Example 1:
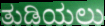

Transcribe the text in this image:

ತುಡಿಯಲು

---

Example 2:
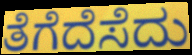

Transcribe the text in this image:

ತೆಗೆದೆಸೆದು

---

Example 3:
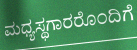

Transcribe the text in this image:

ಮಧ್ಯಸ್ಥಗಾರರೊಂದಿಗೆ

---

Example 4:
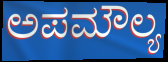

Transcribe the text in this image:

ಅಪಮೌಲ್ಯ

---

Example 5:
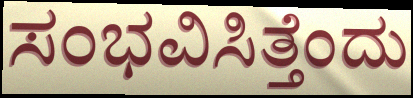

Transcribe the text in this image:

ಸಂಭವಿಸಿತ್ತೆಂದು